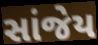
સાંજેય